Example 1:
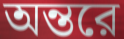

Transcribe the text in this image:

অন্তরে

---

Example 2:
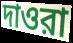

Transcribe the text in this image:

দাওরা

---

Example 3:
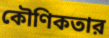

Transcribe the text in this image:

কৌণিকতার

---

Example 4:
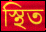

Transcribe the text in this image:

স্থিত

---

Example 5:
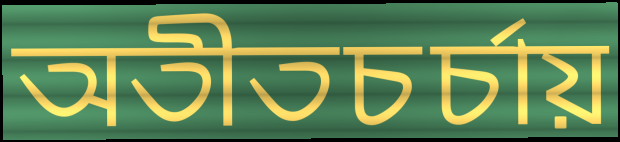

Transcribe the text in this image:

অতীতচর্চায়